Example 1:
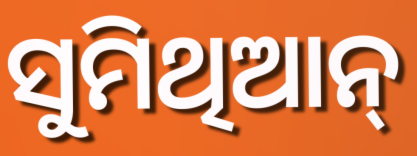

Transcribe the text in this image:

ସୁମିଥିଆନ୍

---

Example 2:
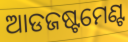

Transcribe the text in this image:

ଆଡଜଷ୍ଟମେଣ୍ଟ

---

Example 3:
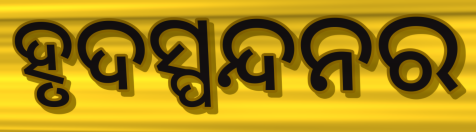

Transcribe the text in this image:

ହୃଦସ୍ପନ୍ଦନର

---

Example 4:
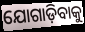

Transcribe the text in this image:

ଯୋଗାଡ଼ିବାକୁ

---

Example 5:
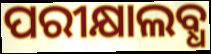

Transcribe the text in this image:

ପରୀକ୍ଷାଲବ୍ଧ